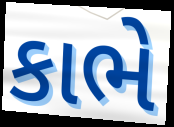
કાભે